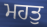
ਮਹਤੁ